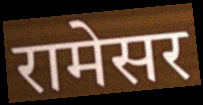
रामेसर